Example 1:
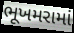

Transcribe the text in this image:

ભૂખમરામાં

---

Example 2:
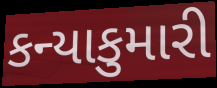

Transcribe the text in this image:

કન્યાકુમારી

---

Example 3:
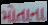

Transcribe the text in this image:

મોતાના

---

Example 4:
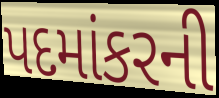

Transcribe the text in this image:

પદમાંકરની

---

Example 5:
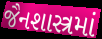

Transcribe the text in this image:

જૈનશાસ્ત્રમાં